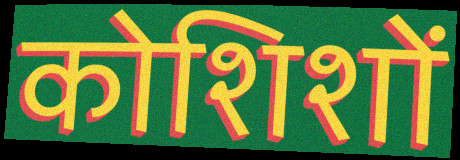
कोशिशों